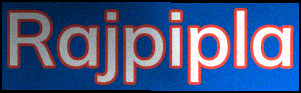
Rajpipla